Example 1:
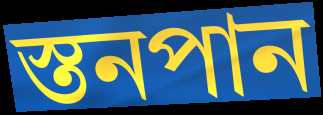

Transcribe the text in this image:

স্তনপান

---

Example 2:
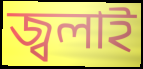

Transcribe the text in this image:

জ্বলাই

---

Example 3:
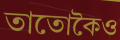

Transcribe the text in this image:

তাতোকৈও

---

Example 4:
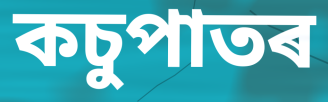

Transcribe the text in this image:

কচুপাতৰ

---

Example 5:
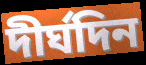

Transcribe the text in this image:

দীৰ্ঘদিন